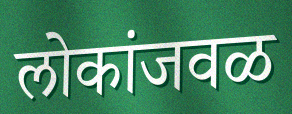
लोकांजवळ